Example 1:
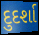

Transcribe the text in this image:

દુદર્શા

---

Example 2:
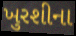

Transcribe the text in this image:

ખુરશીના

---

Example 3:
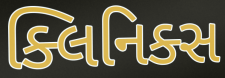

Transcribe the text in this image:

ક્લિનિક્સ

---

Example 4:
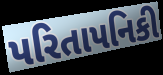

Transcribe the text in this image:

પરિતાપનિકી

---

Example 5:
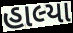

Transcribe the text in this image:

હાલ્યા